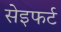
सेइफर्ट